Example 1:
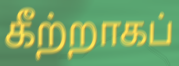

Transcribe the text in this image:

கீற்றாகப்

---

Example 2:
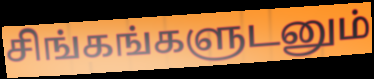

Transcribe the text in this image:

சிங்கங்களுடனும்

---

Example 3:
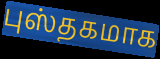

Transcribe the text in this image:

புஸ்தகமாக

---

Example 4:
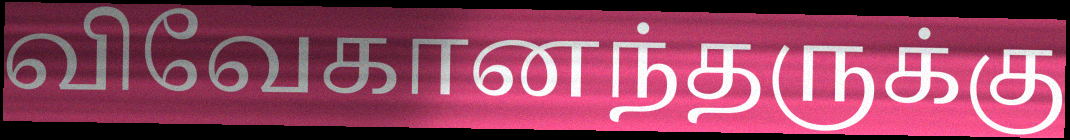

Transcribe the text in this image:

விவேகானந்தருக்கு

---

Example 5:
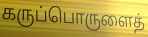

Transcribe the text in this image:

கருப்பொருளைத்